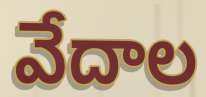
వేదాల